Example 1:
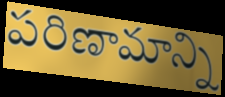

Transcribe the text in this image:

పరిణామాన్ని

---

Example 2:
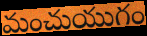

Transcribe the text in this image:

మంచుయుగం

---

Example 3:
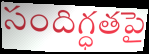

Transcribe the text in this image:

సందిగ్ధతపై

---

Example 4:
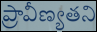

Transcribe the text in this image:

ప్రావీణ్యతని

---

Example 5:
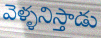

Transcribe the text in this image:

వెళ్ళనిస్తాడు